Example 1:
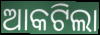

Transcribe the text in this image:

ଆକଟିଲା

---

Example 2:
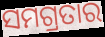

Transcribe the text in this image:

ସମଗ୍ରତାର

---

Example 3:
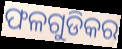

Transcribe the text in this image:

ଫଳଗୁଡିକର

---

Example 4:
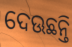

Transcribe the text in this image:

ଦେଊଛନ୍ତି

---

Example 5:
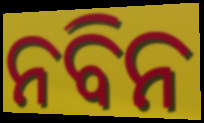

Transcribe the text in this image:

ନବିନ